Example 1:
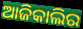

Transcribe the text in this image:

ଆଜିକାଲିର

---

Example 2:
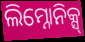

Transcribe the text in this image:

ଲିମ୍ନୋନିକ୍ସ୍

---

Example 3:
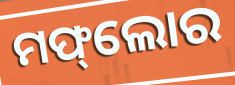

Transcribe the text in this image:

ମଫ୍‌ଲୋର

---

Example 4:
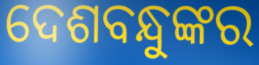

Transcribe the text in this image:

ଦେଶବନ୍ଧୁଙ୍କର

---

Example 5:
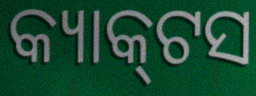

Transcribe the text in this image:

କ୍ୟାକ୍‌ଟସ